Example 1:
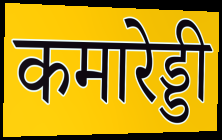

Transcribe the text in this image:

कमारेड्डी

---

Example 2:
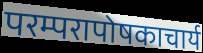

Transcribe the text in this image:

परम्परापोषकाचार्य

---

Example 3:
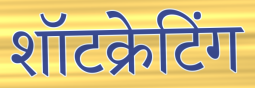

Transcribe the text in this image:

शॉटक्रेटिंग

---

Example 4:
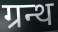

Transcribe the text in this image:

ग्रन्थ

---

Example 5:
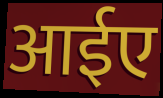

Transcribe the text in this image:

आईए